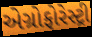
એગ્રોફોરેસ્ટ્રી